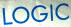
LOGIC